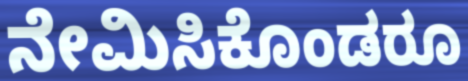
ನೇಮಿಸಿಕೊಂಡರೂ